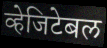
व्हेजिटेबल